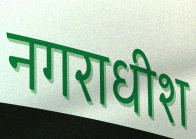
नगराधीश